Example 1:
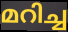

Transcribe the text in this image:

മറിച്ച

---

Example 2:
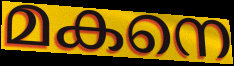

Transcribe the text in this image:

മകനെ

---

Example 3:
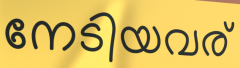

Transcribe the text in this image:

നേടിയവര്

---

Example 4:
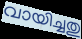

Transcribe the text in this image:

വായിച്ചതു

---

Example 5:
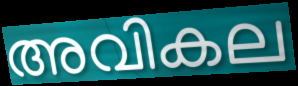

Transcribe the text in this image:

അവികല